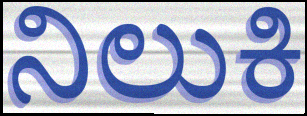
ನಿಲುಕಿ